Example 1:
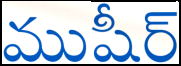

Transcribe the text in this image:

ముషీర్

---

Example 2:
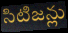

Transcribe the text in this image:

సిటిజన్లు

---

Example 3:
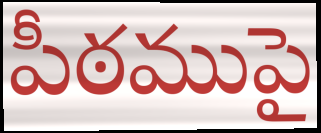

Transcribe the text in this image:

పీఠముపై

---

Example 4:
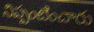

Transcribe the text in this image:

నిప్పంటించారు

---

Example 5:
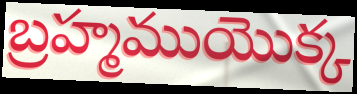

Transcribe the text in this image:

బ్రహ్మముయొక్క